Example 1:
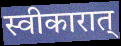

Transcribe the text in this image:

स्वीकारात्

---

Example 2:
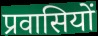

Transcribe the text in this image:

प्रवासियों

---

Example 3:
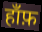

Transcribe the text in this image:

हाँफ़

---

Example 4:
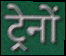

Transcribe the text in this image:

ट्रेनों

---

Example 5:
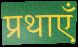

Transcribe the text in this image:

प्रथाएँ